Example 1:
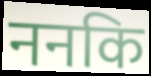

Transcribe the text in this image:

ननकि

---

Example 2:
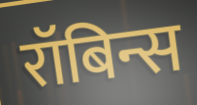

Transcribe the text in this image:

रॉबिन्स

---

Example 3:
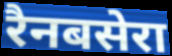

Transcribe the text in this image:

रैनबसेरा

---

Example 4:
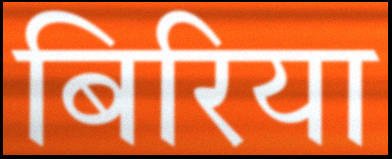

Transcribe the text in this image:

बिरिया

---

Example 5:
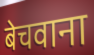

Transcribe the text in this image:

बेचवाना